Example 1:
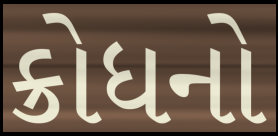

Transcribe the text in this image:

ક્રોધનો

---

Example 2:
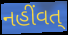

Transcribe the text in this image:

નહીંવત્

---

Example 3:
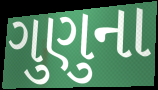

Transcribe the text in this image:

ગુણુના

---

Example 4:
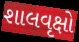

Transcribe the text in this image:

શાલવૃક્ષો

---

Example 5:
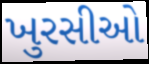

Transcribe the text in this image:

ખુરસીઓ